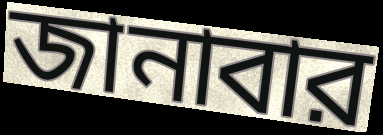
জানাবার